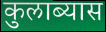
कुलाब्यास